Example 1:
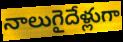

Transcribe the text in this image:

నాలుగైదేళ్లుగా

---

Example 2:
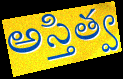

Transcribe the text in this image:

అస్తిత్వ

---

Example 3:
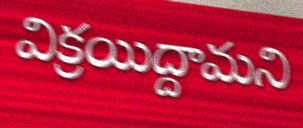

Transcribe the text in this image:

విక్రయిద్దామని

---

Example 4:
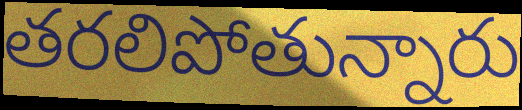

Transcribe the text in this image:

తరలిపోతున్నారు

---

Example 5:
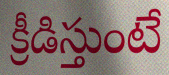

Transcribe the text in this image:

క్రీడిస్తుంటే